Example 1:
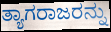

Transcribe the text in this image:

ತ್ಯಾಗರಾಜರನ್ನು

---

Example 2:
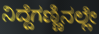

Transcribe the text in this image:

ನಿದ್ದೆಗಣ್ಣಿನಲ್ಲೇ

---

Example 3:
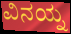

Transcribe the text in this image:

ವಿನಯ್ನ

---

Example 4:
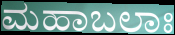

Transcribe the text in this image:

ಮಹಾಬಲಾಃ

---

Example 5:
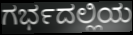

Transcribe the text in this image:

ಗರ್ಭದಲ್ಲಿಯ